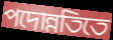
পদোন্নতিতে